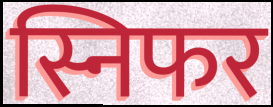
स्निफर